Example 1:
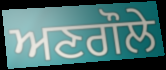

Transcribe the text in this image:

ਅਣਗੌਲੇ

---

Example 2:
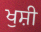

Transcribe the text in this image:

ਖੁਸ਼ੀ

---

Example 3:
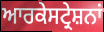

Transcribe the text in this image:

ਆਰਕੇਸਟ੍ਰੇਸ਼ਨਾਂ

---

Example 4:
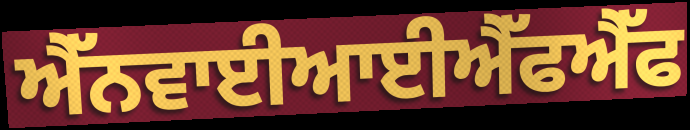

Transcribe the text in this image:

ਐੱਨਵਾਈਆਈਐੱਫਐੱਫ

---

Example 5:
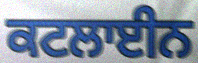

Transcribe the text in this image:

ਕਟਲਾਈਨ